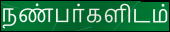
நண்பர்களிடம்